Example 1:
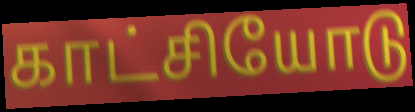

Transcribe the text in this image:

காட்சியோடு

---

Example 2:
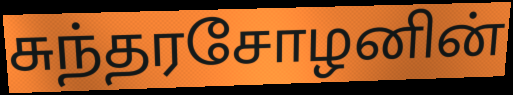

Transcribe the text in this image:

சுந்தரசோழனின்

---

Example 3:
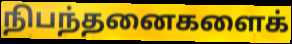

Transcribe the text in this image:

நிபந்தனைகளைக்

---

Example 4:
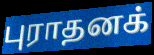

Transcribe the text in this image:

புராதனக்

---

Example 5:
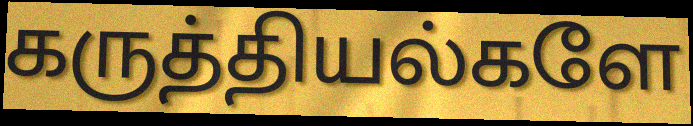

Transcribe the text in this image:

கருத்தியல்களே